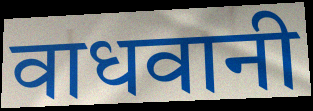
वाधवानी